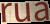
rua